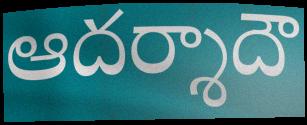
ఆదర్శాదౌ